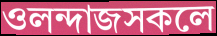
ওলন্দাজসকলে